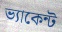
ভ্যাকেন্ট